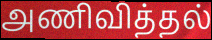
அணிவித்தல்